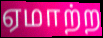
ஏமாற்ற